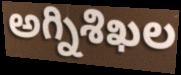
అగ్నిశిఖల